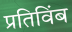
प्रतिविंब